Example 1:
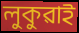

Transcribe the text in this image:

লুকুৱাই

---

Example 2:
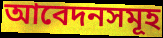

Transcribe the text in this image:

আবেদনসমূহ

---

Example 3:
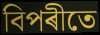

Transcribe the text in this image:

বিপৰীতে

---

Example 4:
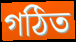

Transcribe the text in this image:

গঠিত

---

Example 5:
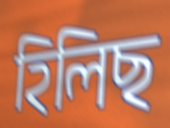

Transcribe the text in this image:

হিলিছ